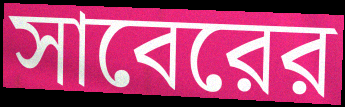
সাবেরের